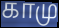
காமு